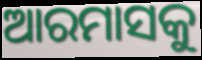
ଆରମାସକୁ